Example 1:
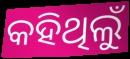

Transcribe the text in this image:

କହିଥିଲୁଁ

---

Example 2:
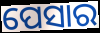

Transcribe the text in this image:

ପେସାର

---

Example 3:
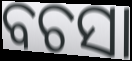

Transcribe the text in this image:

ବଚସା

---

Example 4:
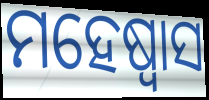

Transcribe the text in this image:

ମହେଷ୍ୱାସ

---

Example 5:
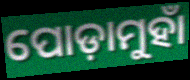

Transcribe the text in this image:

ପୋଡ଼ାମୁହାଁ